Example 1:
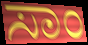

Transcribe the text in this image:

ಸಾಂ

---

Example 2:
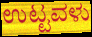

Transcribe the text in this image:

ಉಟ್ಟವಳು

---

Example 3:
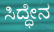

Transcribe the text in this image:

ಸಿದ್ಧೇನ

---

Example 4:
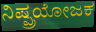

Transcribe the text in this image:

ನಿಷ್ಪ್ರಯೋಜಕ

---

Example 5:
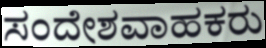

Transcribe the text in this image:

ಸಂದೇಶವಾಹಕರು